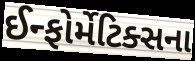
ઈન્ફોર્મેટિક્સના